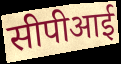
सीपीआई